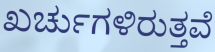
ಖರ್ಚುಗಳಿರುತ್ತವೆ